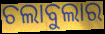
ଚଲାବୁଲାର